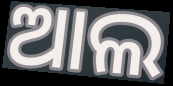
ଆଲ